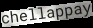
chellappay